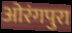
ओरंगपुरा